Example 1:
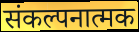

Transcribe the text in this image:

संकल्पनात्मक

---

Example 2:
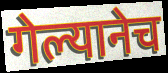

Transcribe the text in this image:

गेल्यानेच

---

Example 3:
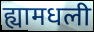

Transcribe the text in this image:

ह्यामधली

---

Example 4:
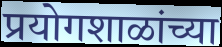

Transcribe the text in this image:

प्रयोगशाळांच्या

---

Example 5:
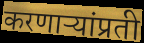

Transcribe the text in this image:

करणाऱ्यांप्रती